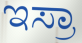
ಇಸ್ರಾ